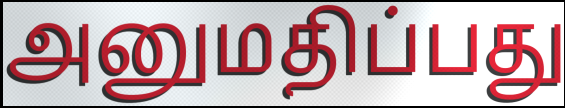
அனுமதிப்பது